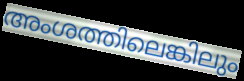
അംശത്തിലെങ്കിലും